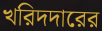
খরিদদারের